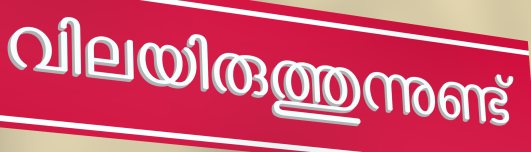
വിലയിരുത്തുന്നുണ്ട്